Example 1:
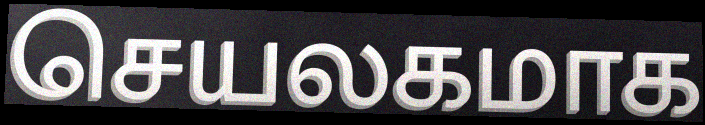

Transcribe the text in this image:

செயலகமாக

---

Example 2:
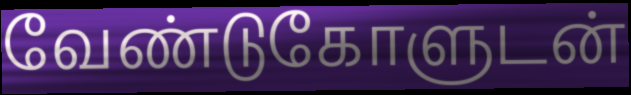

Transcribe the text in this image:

வேண்டுகோளுடன்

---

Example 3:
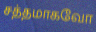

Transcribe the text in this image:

சத்தமாகவோ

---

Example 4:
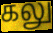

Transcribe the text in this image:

கலு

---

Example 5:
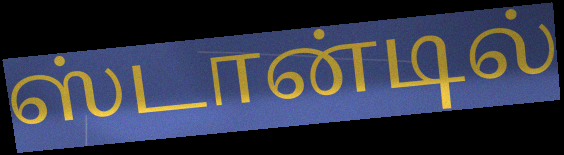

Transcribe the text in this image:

ஸ்டான்டில்